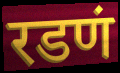
रडणं